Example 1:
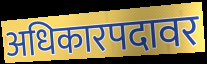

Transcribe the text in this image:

अधिकारपदावर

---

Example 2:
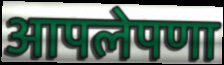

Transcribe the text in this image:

आपलेपणा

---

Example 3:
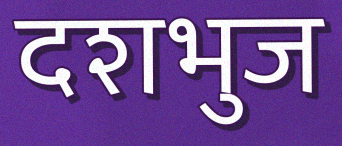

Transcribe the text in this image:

दशभुज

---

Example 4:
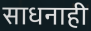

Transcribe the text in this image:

साधनाही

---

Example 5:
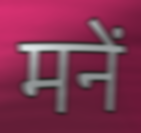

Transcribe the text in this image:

मनें